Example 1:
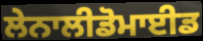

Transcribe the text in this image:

ਲੇਨਾਲੀਡੋਮਾਈਡ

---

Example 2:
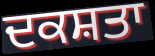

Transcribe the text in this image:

ਦਕਸ਼ਤਾ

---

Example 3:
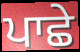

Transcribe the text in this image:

ਪਾਛੇ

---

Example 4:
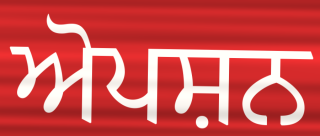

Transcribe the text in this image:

ਅੋਪਸ਼ਨ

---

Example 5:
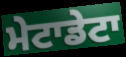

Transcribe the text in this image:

ਮੇਟਾਡੇਟਾ